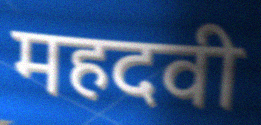
महदवी